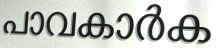
പാവകാർക